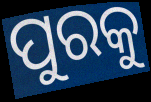
ପୁରକୁ